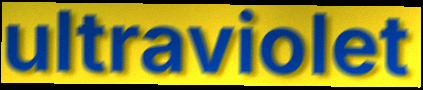
ultraviolet